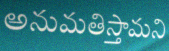
అనుమతిస్తామని